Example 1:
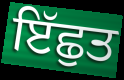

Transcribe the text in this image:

ਇੱਛੁਤ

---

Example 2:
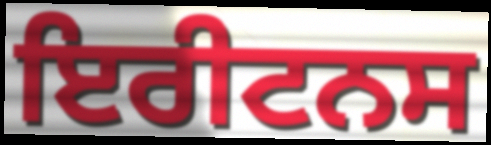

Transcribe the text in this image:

ਇਰੀਟਨਸ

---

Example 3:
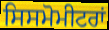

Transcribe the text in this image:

ਸਿਸਮੋਮੀਟਰਾਂ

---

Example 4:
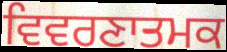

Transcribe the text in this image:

ਵਿਵਰਣਾਤਮਕ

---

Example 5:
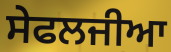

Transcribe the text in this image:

ਸੇਫਲਜੀਆ